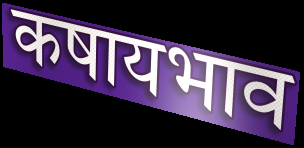
कषायभाव